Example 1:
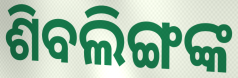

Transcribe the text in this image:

ଶିବଲିଙ୍ଗଙ୍କ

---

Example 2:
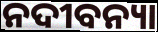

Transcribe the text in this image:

ନଦୀବନ୍ୟା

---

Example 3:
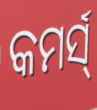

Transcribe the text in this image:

କମର୍ସ୍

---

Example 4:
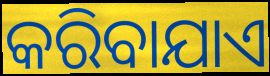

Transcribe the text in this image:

କରିବାଯାଏ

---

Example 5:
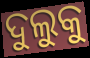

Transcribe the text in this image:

ଦୁଲୁକୁ